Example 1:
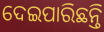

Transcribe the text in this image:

ଦେଇପାରିଛନ୍ତି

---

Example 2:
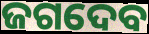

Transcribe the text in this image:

ଜଗଦେବ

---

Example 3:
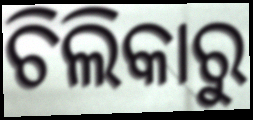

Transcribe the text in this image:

ଚିଲିକାରୁ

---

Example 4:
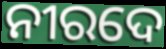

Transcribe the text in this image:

ନୀରଦେ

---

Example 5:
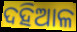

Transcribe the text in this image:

ଦହିଆଳ